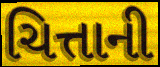
ચિત્તાની